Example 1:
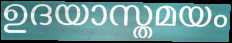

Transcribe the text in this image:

ഉദയാസ്തമയം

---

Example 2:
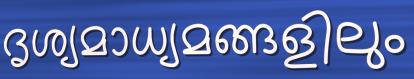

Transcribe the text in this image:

ദൃശ്യമാധ്യമങ്ങളിലും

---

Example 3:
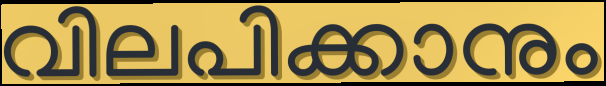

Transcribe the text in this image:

വിലപിക്കാനും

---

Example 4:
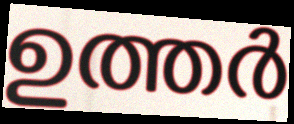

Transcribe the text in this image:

ഉത്തർ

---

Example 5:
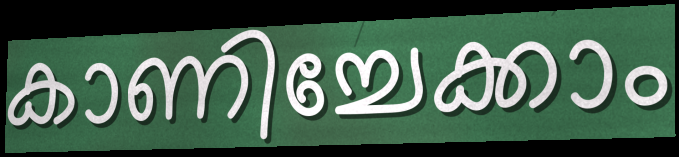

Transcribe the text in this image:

കാണിച്ചേക്കാം